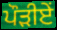
ਪੌੜੀਏਂ